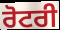
ਰੋਟਰੀ